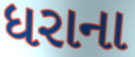
ધરાના